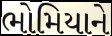
ભોમિયાને